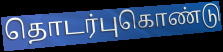
தொடர்புகொண்டு